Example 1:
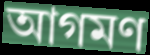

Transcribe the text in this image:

আগমণ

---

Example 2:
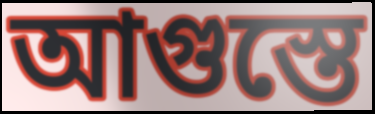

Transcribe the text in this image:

আগুস্তে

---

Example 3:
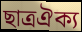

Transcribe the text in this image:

ছাত্রঐক্য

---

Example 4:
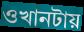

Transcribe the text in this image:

ওখানটায়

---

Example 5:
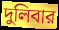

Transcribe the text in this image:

দুলিবার